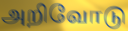
அறிவோடு